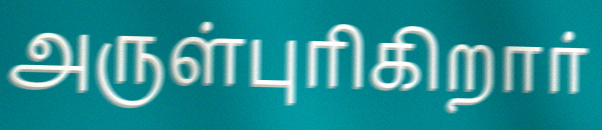
அருள்புரிகிறார்